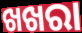
ଖଖରା